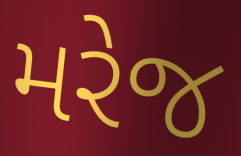
મરેજ